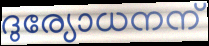
ദുര്യോധനന്